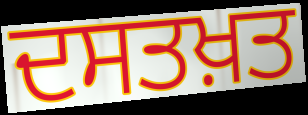
ਦਸਤਖ਼ਤ